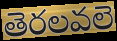
తెరలవలె